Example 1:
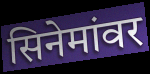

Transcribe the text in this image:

सिनेमांवर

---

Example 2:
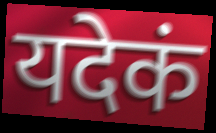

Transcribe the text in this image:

यदेकं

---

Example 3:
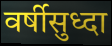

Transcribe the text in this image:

वर्षीसुध्दा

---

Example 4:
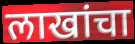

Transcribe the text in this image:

लाखांचा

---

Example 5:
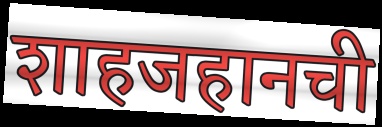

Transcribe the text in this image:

शाहजहानची